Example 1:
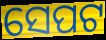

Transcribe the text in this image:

ସେପଟ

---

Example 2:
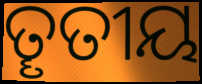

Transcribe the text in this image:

ତୄତୀୟ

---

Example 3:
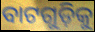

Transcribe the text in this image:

ବାଟଗୁଡ଼ିକୁ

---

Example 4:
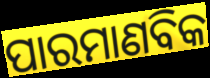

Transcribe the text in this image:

ପାରମାଣବିକ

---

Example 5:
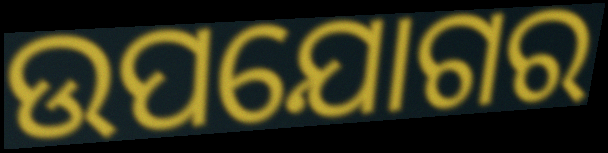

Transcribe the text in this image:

ଉପଯୋଗର